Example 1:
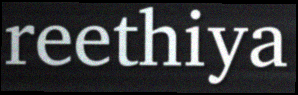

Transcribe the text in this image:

reethiya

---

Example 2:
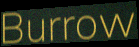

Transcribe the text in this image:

Burrow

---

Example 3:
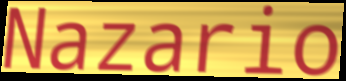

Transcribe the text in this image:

Nazario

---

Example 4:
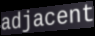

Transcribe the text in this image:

adjacent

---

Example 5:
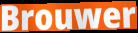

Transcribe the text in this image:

Brouwer